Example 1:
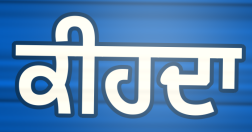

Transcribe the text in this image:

ਕੀਹਦਾ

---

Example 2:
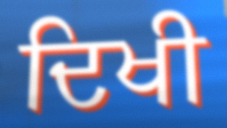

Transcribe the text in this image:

ਦਿਖੀ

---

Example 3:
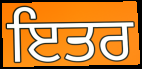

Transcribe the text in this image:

ਇਤਰ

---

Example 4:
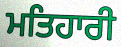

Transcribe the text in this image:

ਮਤਿਹਾਰੀ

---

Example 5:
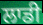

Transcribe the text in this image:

ਲਾਡੀ